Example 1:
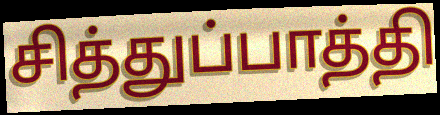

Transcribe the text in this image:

சித்துப்பாத்தி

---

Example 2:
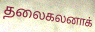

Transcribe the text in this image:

தலைகலனாக்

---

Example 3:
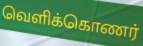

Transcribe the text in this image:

வெளிக்கொணர்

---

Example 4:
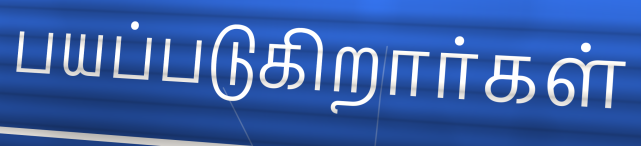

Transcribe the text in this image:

பயப்படுகிறார்கள்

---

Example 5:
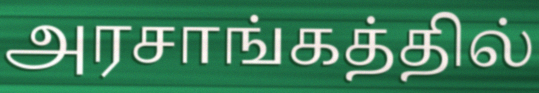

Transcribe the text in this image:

அரசாங்கத்தில்